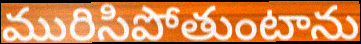
మురిసిపోతుంటాను